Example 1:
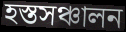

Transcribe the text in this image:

হস্তসঞ্চালন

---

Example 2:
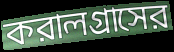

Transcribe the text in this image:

করালগ্রাসের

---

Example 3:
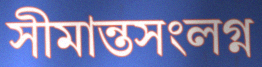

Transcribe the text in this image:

সীমান্তসংলগ্ন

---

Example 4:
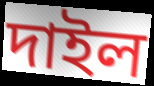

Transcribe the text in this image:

দাইল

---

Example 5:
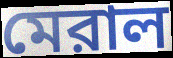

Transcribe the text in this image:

মেরাল